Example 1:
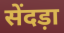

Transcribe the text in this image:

सेंदड़ा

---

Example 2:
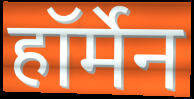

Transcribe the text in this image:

हॉर्मेन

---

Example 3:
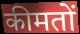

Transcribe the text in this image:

कीमतों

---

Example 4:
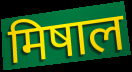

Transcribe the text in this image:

मिषाल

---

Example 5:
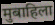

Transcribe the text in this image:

मुबाहिला